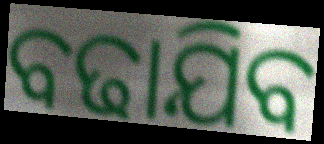
ବଢାଯିବ